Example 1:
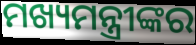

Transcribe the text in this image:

ମଖ୍ୟମନ୍ତ୍ରୀଙ୍କର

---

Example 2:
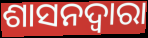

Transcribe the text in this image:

ଶାସନଦ୍ୱାରା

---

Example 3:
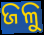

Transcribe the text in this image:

ଜଳୁ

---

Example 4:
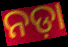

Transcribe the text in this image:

ନଡ଼ା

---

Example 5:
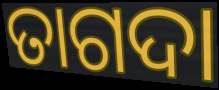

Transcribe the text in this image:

ତାଗଦା